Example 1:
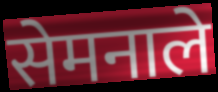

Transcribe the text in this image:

सेमनाले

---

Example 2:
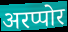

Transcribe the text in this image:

अरप्पोर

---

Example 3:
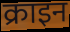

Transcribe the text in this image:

क्राइन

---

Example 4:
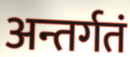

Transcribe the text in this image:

अन्तर्गतं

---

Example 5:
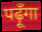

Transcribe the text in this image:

पढ़ूँगा